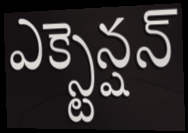
ఎక్స్టెన్షన్